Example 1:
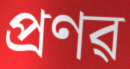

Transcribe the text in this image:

প্ৰণৱ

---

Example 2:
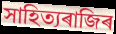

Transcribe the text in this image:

সাহিত্যৰাজিৰ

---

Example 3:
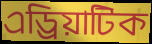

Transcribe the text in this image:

এড্ৰিয়াটিক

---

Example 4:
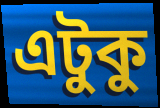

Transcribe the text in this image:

এটুকু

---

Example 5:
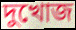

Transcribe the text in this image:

দুখোজ